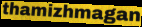
thamizhmagan